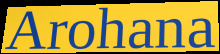
Arohana